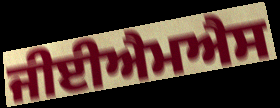
ਜੀਈਐਮਐਸ